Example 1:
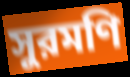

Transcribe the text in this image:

সুরমণি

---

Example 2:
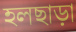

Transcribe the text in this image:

হলছাড়া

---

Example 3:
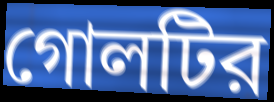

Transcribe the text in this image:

গোলটির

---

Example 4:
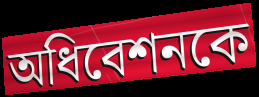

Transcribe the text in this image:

অধিবেশনকে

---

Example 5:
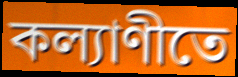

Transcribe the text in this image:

কল্যাণীতে